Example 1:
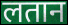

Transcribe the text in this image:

लतान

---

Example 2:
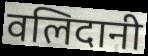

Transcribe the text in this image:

वलिदानी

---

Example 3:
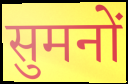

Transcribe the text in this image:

सुमनों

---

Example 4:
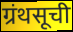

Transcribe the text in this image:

ग्रंथसूची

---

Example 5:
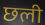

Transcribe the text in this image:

छली